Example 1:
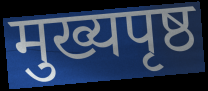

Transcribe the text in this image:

मुख्यपृष्ठ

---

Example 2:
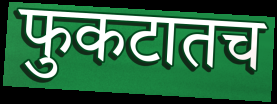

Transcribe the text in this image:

फुकटातच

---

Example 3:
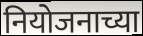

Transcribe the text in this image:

नियोजनाच्या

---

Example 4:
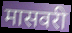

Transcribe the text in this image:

मासवरी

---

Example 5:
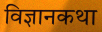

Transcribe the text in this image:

विज्ञानकथा